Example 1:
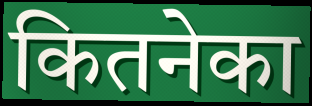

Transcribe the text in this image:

कितनेका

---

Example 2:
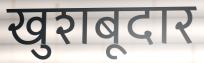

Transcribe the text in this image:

खुशबूदार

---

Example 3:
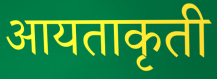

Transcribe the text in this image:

आयताकृती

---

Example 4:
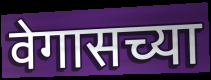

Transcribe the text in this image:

वेगासच्या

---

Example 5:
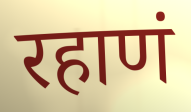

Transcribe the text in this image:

रहाणं